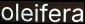
oleifera